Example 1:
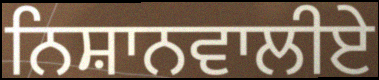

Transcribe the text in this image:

ਨਿਸ਼ਾਨਵਾਲੀਏ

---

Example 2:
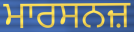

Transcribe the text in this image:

ਮਾਰਸਨਜ਼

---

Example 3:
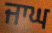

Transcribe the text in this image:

ਜਾਘ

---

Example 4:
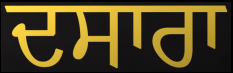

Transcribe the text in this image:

ਦਸਾਰਾ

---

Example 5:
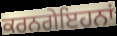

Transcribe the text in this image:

ਕਰਨਗੇਇਹਨਾਂ